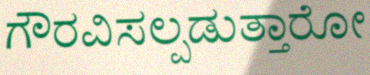
ಗೌರವಿಸಲ್ಪಡುತ್ತಾರೋ